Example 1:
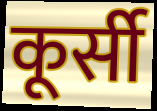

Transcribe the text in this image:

कूर्सी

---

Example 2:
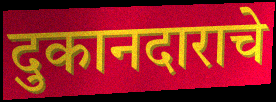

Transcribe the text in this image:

दुकानदाराचे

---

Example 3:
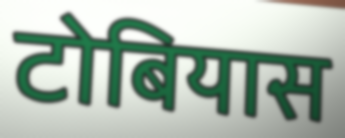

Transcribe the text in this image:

टोबियास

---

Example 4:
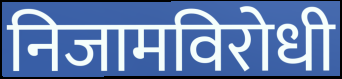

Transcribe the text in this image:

निजामविरोधी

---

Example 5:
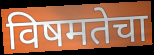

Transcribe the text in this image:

विषमतेचा